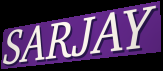
SARJAY